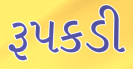
રૂપકડી